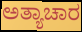
ಅತ್ಯಾಚಾರ